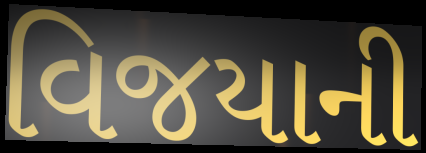
વિજયાની